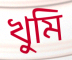
খুমি